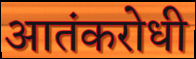
आतंकरोधी